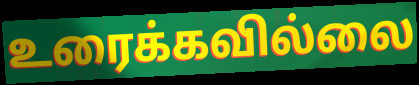
உரைக்கவில்லை